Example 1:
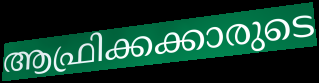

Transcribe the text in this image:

ആഫ്രിക്കക്കാരുടെ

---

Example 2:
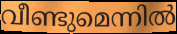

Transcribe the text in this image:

വീണ്ടുമെന്നിൽ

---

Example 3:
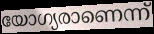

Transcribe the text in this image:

യോഗ്യരാണെന്ന്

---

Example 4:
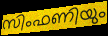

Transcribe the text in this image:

സിംഫണിയും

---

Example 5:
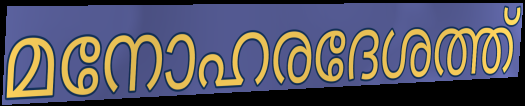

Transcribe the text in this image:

മനോഹരദേശത്ത്